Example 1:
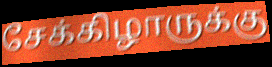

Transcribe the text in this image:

சேக்கிழாருக்கு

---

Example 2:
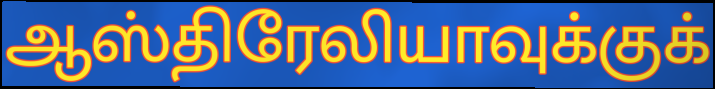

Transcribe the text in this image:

ஆஸ்திரேலியாவுக்குக்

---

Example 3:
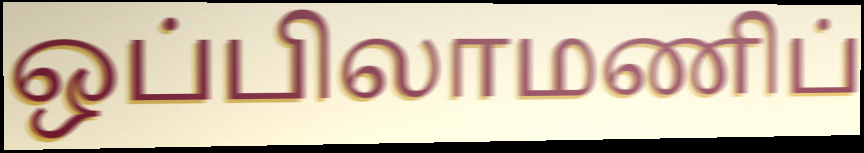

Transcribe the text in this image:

ஒப்பிலாமணிப்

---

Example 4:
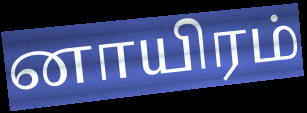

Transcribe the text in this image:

னாயிரம்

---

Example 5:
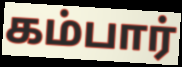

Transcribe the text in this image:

கம்பார்